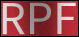
RPF